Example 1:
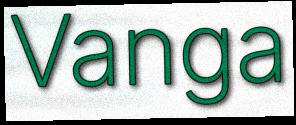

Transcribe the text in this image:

Vanga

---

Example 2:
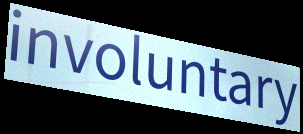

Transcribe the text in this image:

involuntary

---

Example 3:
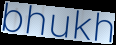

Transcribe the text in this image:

bhukh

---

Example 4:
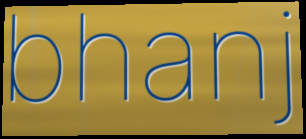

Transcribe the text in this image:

bhanj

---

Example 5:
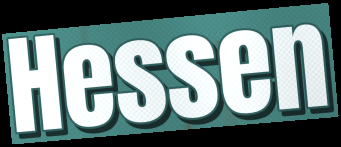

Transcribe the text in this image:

Hessen